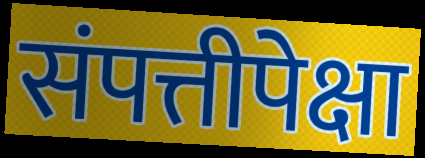
संपत्तीपेक्षा